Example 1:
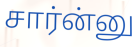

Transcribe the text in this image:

சார்ன்னு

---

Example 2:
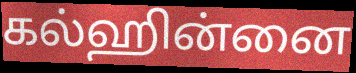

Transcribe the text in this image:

கல்ஹின்னை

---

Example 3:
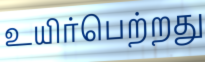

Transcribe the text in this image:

உயிர்பெற்றது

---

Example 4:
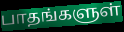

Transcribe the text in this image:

பாதங்களுள்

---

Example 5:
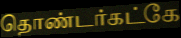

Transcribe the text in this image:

தொண்டர்கட்கே